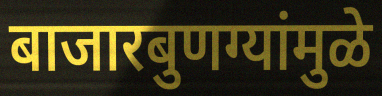
बाजारबुणग्यांमुळे